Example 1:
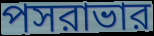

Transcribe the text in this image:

পসরাভার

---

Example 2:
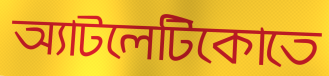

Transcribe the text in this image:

অ্যাটলেটিকোতে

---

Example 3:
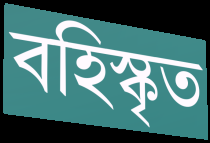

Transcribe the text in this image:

বহিস্কৃত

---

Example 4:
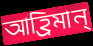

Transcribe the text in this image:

আহ্রিমান্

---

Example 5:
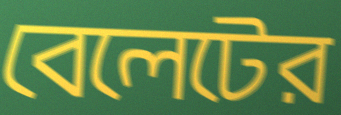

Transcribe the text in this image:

বেলেটের